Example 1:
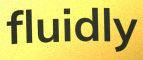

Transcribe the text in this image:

fluidly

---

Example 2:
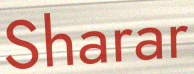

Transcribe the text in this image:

Sharar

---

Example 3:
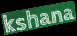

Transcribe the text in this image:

kshana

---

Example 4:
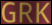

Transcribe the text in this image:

GRK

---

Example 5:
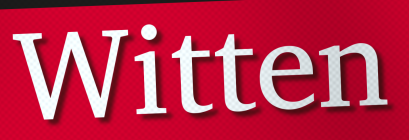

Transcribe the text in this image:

Witten